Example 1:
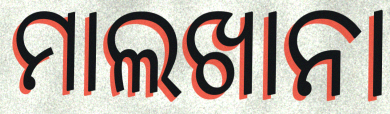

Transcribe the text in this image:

ମାଲଖାନା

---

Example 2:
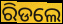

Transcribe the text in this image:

ରିଡଲେ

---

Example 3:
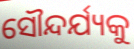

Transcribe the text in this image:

ସୌନ୍ଦର୍ଯ୍ୟକୁ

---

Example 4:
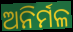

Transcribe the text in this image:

ଅନିର୍ମଳ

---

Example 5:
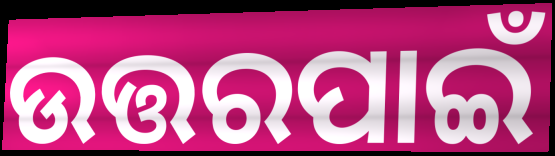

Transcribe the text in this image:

ଉତ୍ତରପାଇଁ